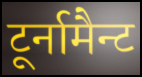
टूर्नामैन्ट